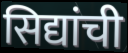
सिद्यांची